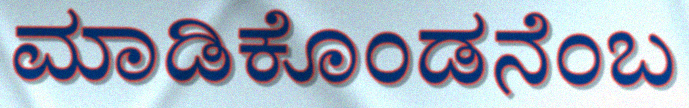
ಮಾಡಿಕೊಂಡನೆಂಬ